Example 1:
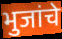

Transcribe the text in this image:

भुजांचे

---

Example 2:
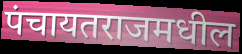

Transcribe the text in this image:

पंचायतराजमधील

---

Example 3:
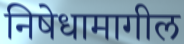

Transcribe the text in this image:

निषेधामागील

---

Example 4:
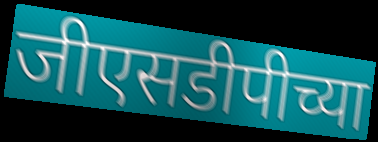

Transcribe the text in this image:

जीएसडीपीच्या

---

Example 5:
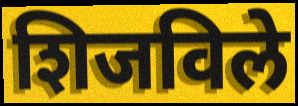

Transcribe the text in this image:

शिजविले